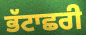
ਭੱਟਾਛਰੀ